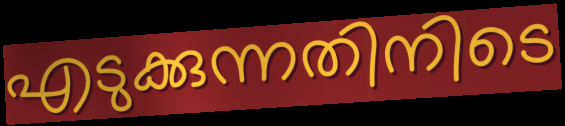
എടുക്കുന്നതിനിടെ